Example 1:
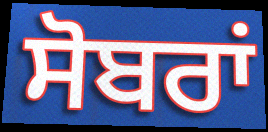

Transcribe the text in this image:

ਸੋਬਰਾਂ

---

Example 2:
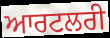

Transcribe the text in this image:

ਆਰਟਲਰੀ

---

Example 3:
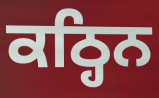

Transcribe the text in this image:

ਕਠ੍ਹਿਨ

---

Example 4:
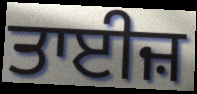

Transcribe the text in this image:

ਤਾਈਜ਼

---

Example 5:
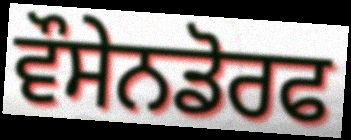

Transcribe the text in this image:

ਵੌਸੇਨਡੋਰਫ